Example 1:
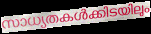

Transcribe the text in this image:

സാധ്യതകൾക്കിടയിലും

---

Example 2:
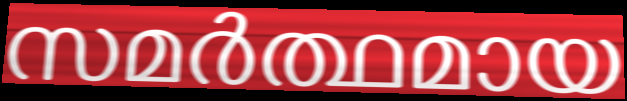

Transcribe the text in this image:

സമർത്ഥമായ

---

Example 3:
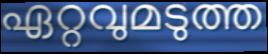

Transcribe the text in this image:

ഏറ്റവുമടുത്ത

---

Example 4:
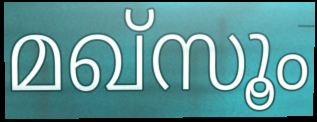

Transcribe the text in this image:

മഖ്സൂം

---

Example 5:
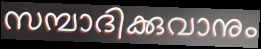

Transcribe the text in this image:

സമ്പാദിക്കുവാനും